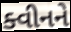
ક્વીનને